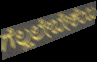
ಗೆಲ್ಲಲೇಬೇಕೆಂಬ